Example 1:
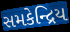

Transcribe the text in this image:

સમકેન્દ્રિય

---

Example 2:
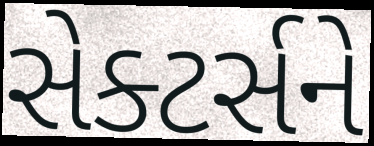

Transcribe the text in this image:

સેક્ટર્સને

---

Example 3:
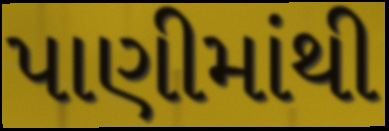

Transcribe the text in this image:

પાણીમાંથી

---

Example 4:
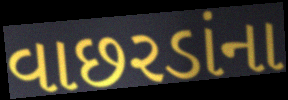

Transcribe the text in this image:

વાછરડાંના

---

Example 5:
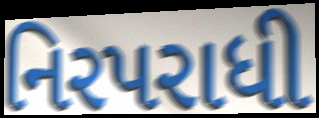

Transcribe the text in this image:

નિરપરાધી